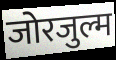
जोरजुल्म